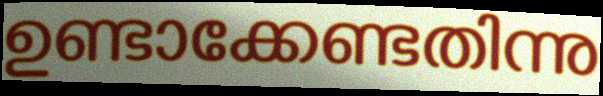
ഉണ്ടാക്കേണ്ടതിന്നു